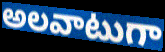
అలవాటుగా